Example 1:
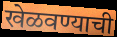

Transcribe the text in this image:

खेळवण्याची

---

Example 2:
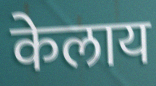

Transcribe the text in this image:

केलाय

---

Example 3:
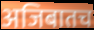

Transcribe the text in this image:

अजिबातच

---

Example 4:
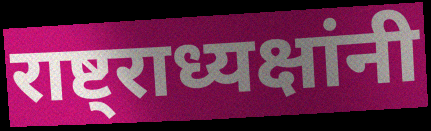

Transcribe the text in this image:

राष्ट्राध्यक्षांनी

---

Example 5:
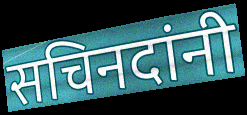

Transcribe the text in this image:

सचिनदांनी